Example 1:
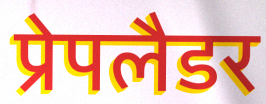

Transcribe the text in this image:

प्रेपलैडर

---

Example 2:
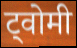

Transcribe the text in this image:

ट्वोमी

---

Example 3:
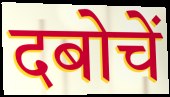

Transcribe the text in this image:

दबोचें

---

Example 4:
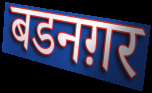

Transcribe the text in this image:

बडनग़र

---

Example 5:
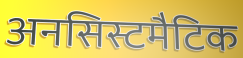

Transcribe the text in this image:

अनसिस्टमैटिक